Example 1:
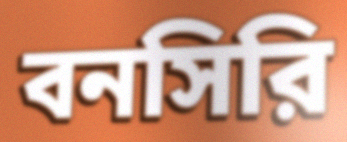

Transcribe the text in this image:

বনসিরি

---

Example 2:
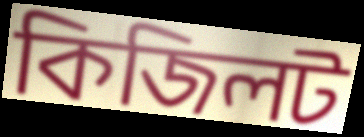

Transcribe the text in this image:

কিজিলট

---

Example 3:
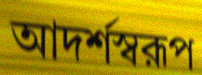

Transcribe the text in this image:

আদর্শস্বরূপ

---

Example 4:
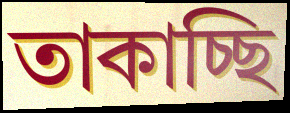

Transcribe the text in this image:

তাকাচ্ছি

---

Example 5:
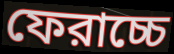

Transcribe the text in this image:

ফেরাচ্চে